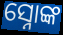
ସ୍ନୋଙ୍କ